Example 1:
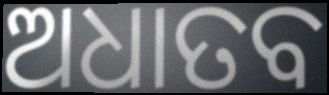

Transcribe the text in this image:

ଅଧାତବ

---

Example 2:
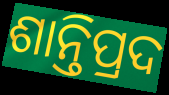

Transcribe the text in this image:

ଶାନ୍ତିପ୍ରଦ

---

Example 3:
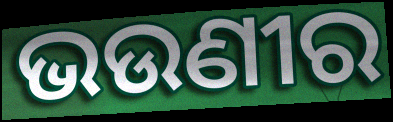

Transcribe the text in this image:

ଭଉଣୀର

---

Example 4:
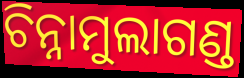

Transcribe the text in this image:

ଚିନ୍ନାମୁଲାଗଣ୍ଡ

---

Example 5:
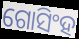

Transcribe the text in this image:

ଗୋସିଂହ